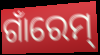
ଗାଁରେମ୍